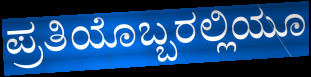
ಪ್ರತಿಯೊಬ್ಬರಲ್ಲಿಯೂ